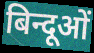
बिन्दूओं